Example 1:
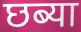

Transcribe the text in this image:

छब्या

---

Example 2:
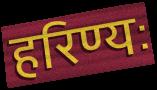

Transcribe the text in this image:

हरिण्यः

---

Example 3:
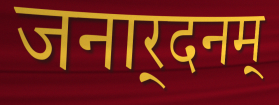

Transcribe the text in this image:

जनार्दनम्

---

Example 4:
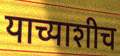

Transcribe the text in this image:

याच्याशीच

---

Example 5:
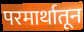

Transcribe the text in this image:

परमार्थातून